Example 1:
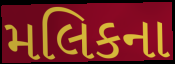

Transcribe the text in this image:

મલિકના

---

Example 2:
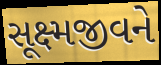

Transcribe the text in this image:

સૂક્ષ્મજીવને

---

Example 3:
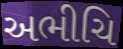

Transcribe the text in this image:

અભીચિ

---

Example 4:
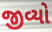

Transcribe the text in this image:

જીવ્યો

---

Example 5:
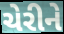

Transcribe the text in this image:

ચેરીને